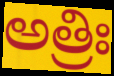
అత్రిః